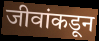
जीवांकडून